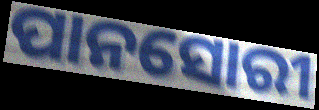
ପାନସୋରୀ